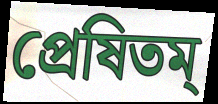
প্রেষিতম্